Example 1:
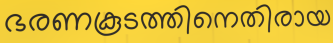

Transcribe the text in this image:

ഭരണകൂടത്തിനെതിരായ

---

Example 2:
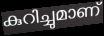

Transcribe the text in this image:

കുറിച്ചുമാണ്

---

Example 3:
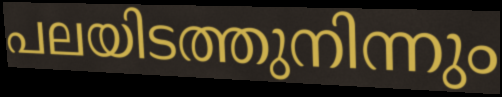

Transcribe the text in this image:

പലയിടത്തുനിന്നും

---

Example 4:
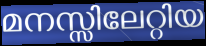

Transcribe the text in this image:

മനസ്സിലേറ്റിയ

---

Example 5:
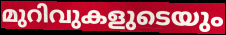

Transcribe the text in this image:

മുറിവുകളുടെയും